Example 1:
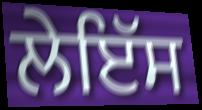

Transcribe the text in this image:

ਲੇਇੱਸ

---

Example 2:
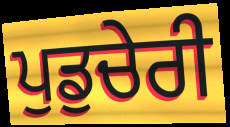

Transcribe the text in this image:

ਪੁਡੁਚੇਰੀ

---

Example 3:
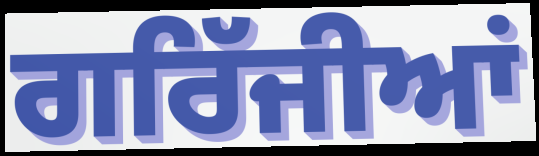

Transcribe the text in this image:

ਗਰਿੱਜੀਆਂ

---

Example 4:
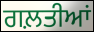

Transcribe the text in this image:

ਗਲ਼ਤੀਆਂ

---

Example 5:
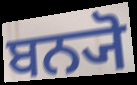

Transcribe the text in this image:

ਬਨ੍ਯੋ